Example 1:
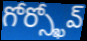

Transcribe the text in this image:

గోర్స్ఖోవ్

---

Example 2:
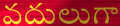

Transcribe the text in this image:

వదులుగా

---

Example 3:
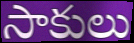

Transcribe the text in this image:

సాకులు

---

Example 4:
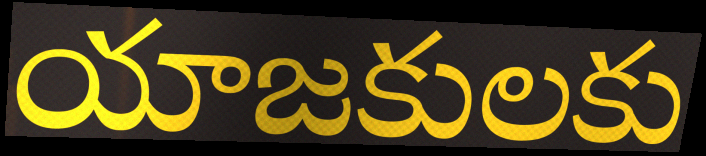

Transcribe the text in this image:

యాజకులకు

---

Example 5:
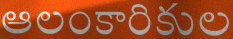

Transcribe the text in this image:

ఆలంకారికుల